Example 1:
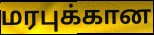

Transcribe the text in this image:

மரபுக்கான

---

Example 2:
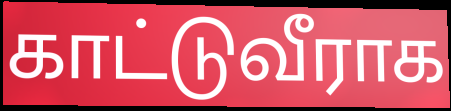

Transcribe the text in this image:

காட்டுவீராக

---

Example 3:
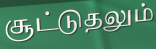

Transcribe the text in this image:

சூட்டுதலும்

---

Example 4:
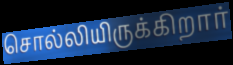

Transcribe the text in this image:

சொல்லியிருக்கிறார்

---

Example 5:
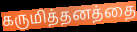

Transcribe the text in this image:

கருமித்தனத்தை